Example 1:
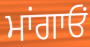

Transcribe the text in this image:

ਮਾਂਗਾਓਂ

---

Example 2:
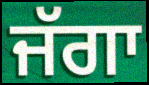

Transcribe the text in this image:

ਜੱਗਾ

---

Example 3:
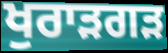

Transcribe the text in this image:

ਖੁਰਾੜਗੜ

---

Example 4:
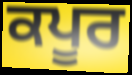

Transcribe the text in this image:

ਕਪੂਰ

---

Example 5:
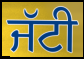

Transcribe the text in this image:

ਜੱਟੀ